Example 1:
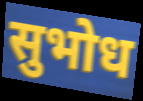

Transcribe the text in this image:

सुभोध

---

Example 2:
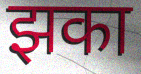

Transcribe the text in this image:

झका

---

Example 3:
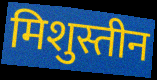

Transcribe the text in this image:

मिशुस्तीन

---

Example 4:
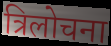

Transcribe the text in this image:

त्रिलोचना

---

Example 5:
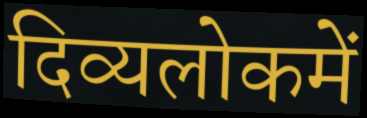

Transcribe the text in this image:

दिव्यलोकमें